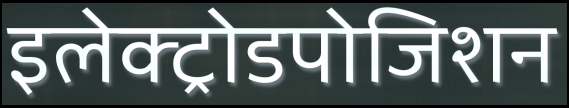
इलेक्ट्रोडपोजिशन